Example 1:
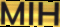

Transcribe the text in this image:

MIH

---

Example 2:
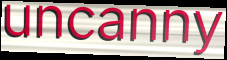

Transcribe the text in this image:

uncanny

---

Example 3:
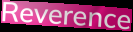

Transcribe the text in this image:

Reverence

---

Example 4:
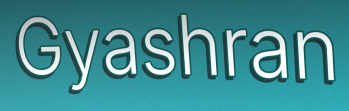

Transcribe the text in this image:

Gyashran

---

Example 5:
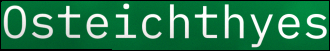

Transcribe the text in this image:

Osteichthyes